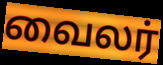
வைலர்